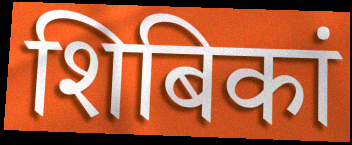
शिबिकां